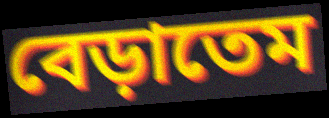
বেড়াতেম